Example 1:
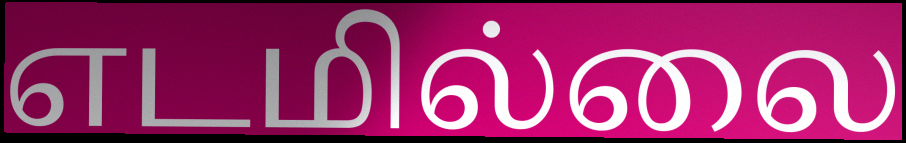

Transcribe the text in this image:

எடமில்லை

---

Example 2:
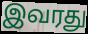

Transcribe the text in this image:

இவரது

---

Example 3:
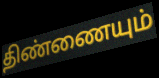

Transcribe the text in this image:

திண்ணையும்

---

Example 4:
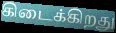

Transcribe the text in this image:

கிடைக்கிறது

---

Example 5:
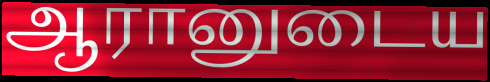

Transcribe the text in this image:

ஆரானுடைய